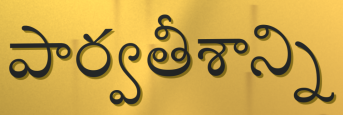
పార్వతీశాన్ని